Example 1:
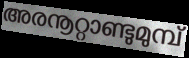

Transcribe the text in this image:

അരനൂറ്റാണ്ടുമുമ്പ്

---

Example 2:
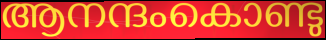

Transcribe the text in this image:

ആനന്ദംകൊണ്ടു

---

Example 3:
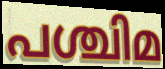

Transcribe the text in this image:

പശ്ചിമ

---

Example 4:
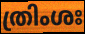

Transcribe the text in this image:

ത്രിംശഃ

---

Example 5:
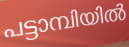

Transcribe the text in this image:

പട്ടാമ്പിയിൽ